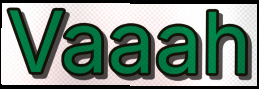
Vaaah